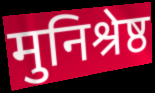
मुनिश्रेष्ठ